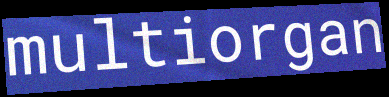
multiorgan